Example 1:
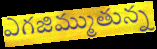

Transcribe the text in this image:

ఎగజిమ్ముతున్న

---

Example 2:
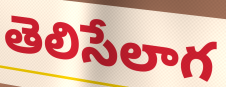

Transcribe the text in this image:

తెలిసేలాగ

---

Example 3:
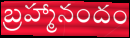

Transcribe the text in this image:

బ్రహ్మానందం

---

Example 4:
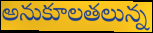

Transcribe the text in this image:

అనుకూలతలున్న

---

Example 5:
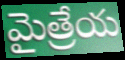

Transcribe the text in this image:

మైత్రేయ